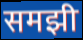
समझी